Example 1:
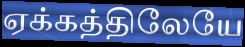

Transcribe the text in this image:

ஏக்கத்திலேயே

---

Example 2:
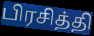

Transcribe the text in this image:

பிரசித்தி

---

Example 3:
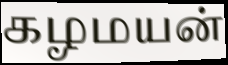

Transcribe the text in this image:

கழமயன்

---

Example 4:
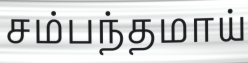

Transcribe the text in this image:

சம்பந்தமாய்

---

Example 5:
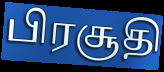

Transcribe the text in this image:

பிரசூதி